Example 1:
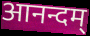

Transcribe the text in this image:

आनन्दम्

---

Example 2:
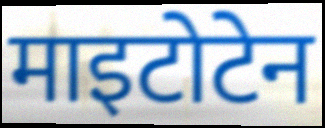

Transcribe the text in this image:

माइटोटेन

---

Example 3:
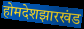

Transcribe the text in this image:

होमदेशझारखंड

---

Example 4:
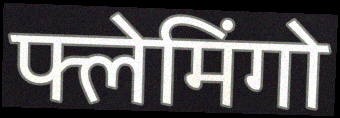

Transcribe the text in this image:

फ्लेमिंगो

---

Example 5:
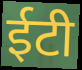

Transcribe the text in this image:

ईटी